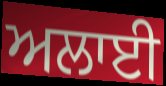
ਅਲਾਈ